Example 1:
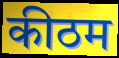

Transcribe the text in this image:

कीठम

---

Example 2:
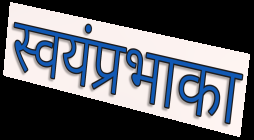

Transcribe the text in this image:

स्वयंप्रभाका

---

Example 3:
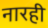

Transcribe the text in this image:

नारही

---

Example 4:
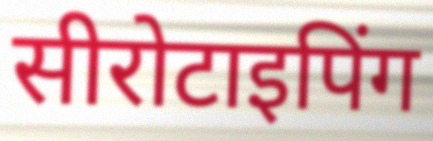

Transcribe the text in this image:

सीरोटाइपिंग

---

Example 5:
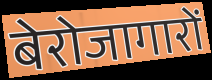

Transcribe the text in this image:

बेरोजागारों